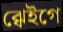
ঝ্ৱেইগে